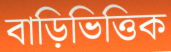
বাড়িভিত্তিক